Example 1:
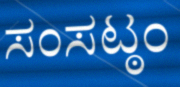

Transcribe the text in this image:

ಸಂಸಟ್ಠಂ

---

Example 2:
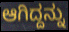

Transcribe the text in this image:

ಆಗಿದ್ದನ್ನು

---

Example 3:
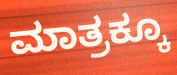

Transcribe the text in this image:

ಮಾತ್ರಕ್ಕೂ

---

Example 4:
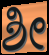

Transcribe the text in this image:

ಶೀ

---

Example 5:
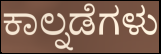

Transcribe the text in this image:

ಕಾಲ್ನಡೆಗಳು